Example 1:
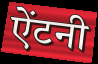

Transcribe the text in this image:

ऐंटनी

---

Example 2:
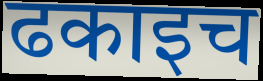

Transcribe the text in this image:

ढकाइच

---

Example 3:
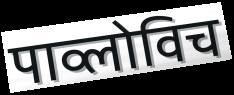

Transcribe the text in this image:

पाव्लोविच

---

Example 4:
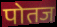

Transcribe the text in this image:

पोतज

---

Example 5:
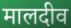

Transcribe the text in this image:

मालदीव